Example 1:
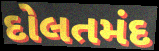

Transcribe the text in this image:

દોલતમંદ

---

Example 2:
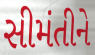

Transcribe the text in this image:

સીમંતીને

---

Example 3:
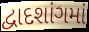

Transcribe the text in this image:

દ્વાદશાંગમાં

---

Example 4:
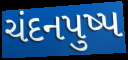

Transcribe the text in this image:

ચંદનપુષ્પ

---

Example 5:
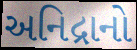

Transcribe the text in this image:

અનિદ્રાનો